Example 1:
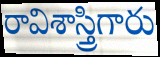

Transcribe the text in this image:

రావిశాస్త్రిగారు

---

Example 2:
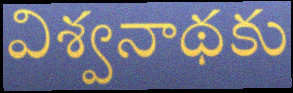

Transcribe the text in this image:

విశ్వనాథకు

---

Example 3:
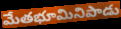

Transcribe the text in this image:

మేతభూమినిపాడు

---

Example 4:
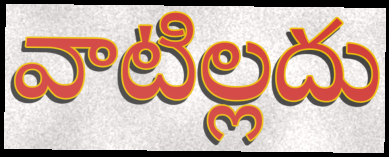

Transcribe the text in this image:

వాటిల్లదు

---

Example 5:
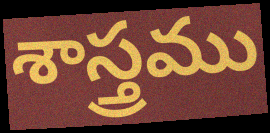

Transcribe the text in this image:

శాస్త్రము